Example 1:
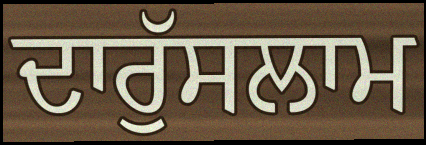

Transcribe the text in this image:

ਦਾਰੁੱਸਲਾਮ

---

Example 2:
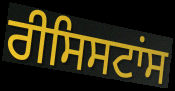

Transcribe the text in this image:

ਰੀਸਿਸਟਾਂਸ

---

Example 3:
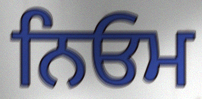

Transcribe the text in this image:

ਨਿਓਮ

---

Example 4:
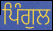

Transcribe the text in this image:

ਪਿੰਗੁਲ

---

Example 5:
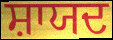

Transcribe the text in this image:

ਸ਼ਾਯਦ